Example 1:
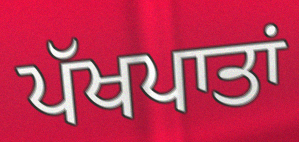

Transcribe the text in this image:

ਪੱਖਪਾਤਾਂ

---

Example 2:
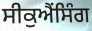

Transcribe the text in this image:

ਸੀਕੁਐਂਸਿੰਗ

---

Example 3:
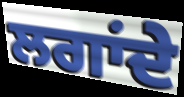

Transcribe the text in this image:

ਲਗਾਂਦੇ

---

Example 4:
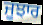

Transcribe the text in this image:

ਜੂਝਾਰ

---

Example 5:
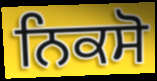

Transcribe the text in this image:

ਨਿਕਸੋ